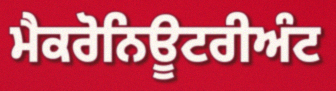
ਮੈਕਰੋਨਿਊਟਰੀਅੰਟ